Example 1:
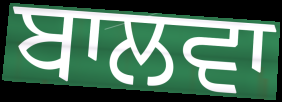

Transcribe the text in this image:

ਬਾਲਵਾ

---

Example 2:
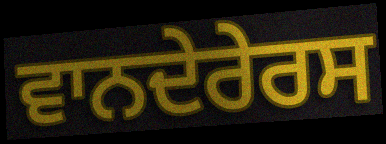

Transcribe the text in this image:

ਵਾਨਦੇਰੇਰਸ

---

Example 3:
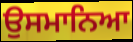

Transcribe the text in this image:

ਉਸਮਾਨਿਆ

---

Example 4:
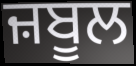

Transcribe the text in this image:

ਜ਼ਬੂਲ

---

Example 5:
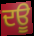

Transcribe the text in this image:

ਦਊ